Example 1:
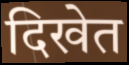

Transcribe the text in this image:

दिखेत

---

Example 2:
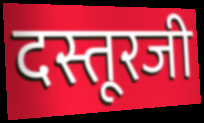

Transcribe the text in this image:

दस्तूरजी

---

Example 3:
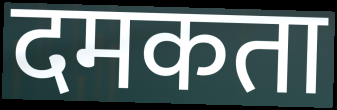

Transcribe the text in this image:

दमकता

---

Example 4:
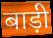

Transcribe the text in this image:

बाड़ी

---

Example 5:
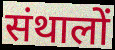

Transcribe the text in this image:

संथालों